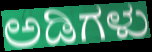
ಅಡಿಗಳು